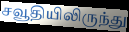
சவூதியிலிருந்து